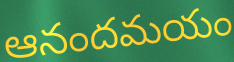
ఆనందమయం